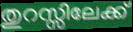
തുറസ്സിലേക്ക്